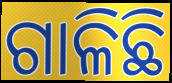
ଗାଳିଛି